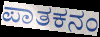
ಪಾತಕನಂ